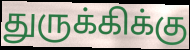
துருக்கிக்கு